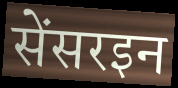
सेंसरइन